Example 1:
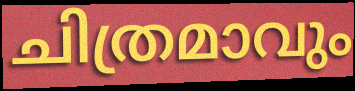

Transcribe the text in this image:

ചിത്രമാവും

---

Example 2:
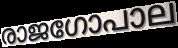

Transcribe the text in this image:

രാജഗോപാല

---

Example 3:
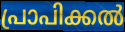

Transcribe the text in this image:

പ്രാപിക്കൽ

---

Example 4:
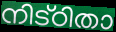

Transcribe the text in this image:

നിട്ഠിതാ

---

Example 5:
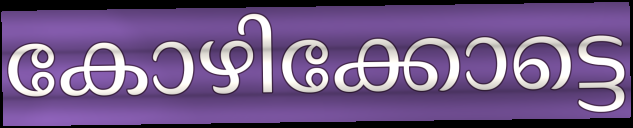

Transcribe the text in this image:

കോഴിക്കോട്ടെ